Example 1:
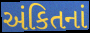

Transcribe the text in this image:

અંકિતનાં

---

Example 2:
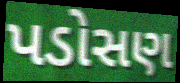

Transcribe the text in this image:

પડોસણ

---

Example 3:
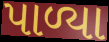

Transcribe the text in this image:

પાળ્યા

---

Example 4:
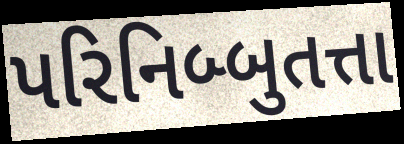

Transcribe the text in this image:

પરિનિબ્બુતત્તા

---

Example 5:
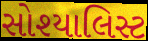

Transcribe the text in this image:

સોશ્યાલિસ્ટ